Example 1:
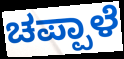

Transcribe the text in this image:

ಚಪ್ಪಾಳೆ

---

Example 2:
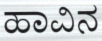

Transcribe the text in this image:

ಹಾವಿನ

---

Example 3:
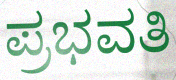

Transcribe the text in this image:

ಪ್ರಭವತಿ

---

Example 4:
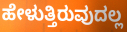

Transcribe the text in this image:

ಹೇಳುತ್ತಿರುವುದಲ್ಲ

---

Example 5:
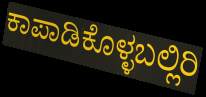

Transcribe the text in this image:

ಕಾಪಾಡಿಕೊಳ್ಳಬಲ್ಲಿರಿ